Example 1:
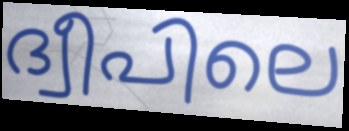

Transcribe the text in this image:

ദ്വീപിലെ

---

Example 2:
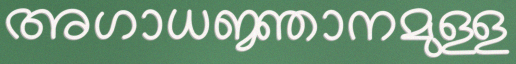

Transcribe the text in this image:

അഗാധജ്ഞാനമുള്ള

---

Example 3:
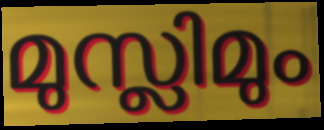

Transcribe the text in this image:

മുസ്ലിമും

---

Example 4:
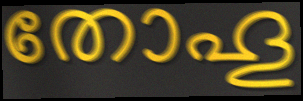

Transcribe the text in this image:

തോഹൂ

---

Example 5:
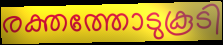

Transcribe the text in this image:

രക്തത്തോടുകൂടി